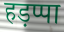
हड़प्पा